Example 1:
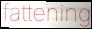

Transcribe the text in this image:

fattening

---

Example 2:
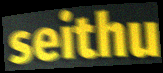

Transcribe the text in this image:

seithu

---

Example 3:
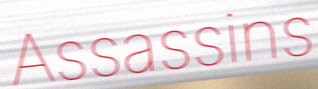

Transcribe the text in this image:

Assassins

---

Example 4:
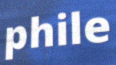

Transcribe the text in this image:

phile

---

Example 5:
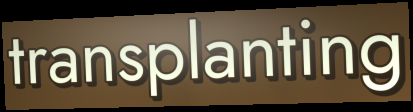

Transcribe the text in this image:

transplanting